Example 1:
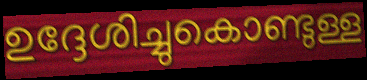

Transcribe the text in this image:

ഉദ്ദേശിച്ചുകൊണ്ടുള്ള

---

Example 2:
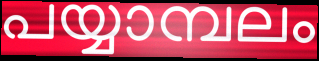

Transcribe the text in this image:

പയ്യാമ്പലം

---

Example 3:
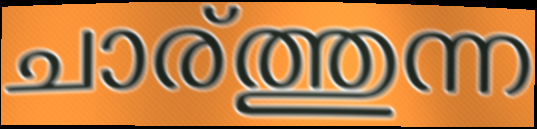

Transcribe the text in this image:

ചാര്ത്തുന്ന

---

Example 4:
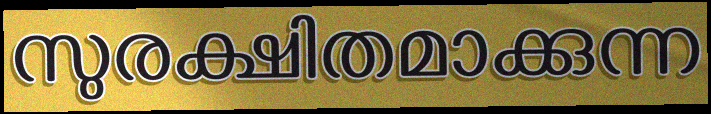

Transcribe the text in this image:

സുരക്ഷിതമാക്കുന്ന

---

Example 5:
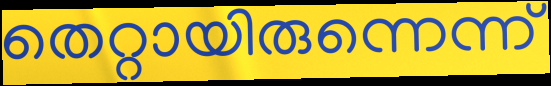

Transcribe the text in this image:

തെറ്റായിരുന്നെന്ന്